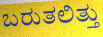
ಬರುತಲಿತ್ತು